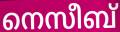
നെസീബ്